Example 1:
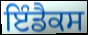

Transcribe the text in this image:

ਇੰਡੈਕਸ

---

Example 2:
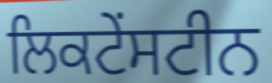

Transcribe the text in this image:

ਲਿਕਟੇਂਸਟੀਨ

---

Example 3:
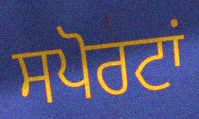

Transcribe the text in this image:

ਸਪੋਰਟਾਂ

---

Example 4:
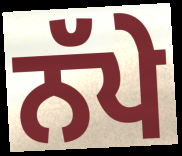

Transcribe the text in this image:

ਨੱਪੇ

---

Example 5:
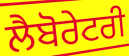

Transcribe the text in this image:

ਲੈਬੋਰੇਟਰੀ